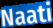
Naati